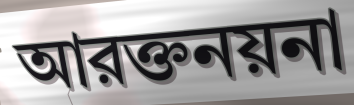
আরক্তনয়না